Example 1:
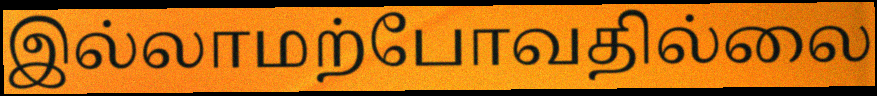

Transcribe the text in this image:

இல்லாமற்போவதில்லை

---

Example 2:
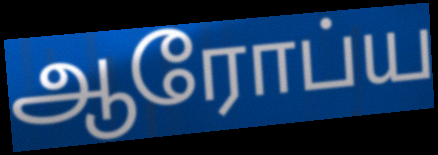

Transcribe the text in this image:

ஆரோப்ய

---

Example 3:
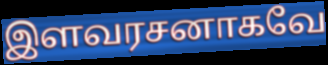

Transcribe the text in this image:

இளவரசனாகவே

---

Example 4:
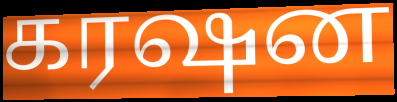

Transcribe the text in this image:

கரஷன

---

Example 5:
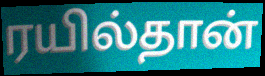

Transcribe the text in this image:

ரயில்தான்